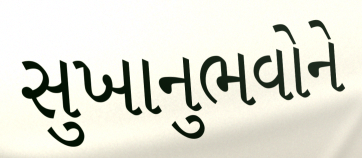
સુખાનુભવોને